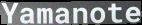
Yamanote